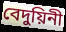
বেদুয়িনী